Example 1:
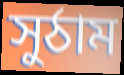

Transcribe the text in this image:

সুঠাম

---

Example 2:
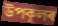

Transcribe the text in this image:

উপকূলৰ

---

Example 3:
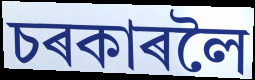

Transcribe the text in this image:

চৰকাৰলৈ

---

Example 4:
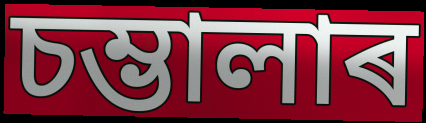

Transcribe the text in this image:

চম্ভালাৰ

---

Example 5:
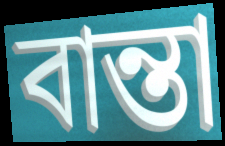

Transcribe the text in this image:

বান্তা